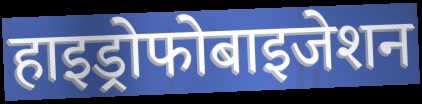
हाइड्रोफोबाइजेशन